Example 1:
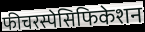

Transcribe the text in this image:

फीचरस्पेसिफिकेशन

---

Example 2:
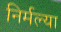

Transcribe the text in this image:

निर्मल्या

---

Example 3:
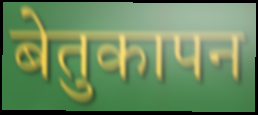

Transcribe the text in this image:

बेतुकापन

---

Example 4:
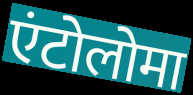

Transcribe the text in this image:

एंटोलोमा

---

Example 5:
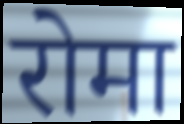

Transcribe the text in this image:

रोमा